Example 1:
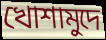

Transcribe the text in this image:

খোশামুদে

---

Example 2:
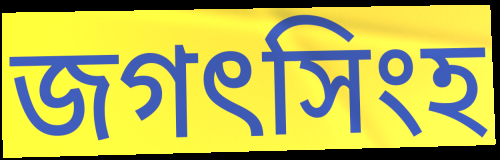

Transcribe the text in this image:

জগৎসিংহ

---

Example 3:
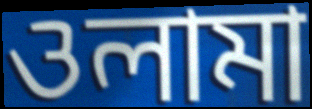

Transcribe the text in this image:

ওলামা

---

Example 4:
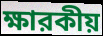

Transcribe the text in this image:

ক্ষারকীয়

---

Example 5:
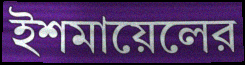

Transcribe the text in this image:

ইশমায়েলের